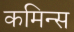
कमिन्स